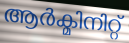
ആർക്മിനിറ്റ്